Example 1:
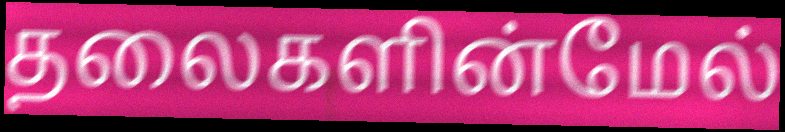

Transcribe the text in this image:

தலைகளின்மேல்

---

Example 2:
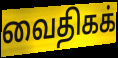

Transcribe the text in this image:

வைதிகக்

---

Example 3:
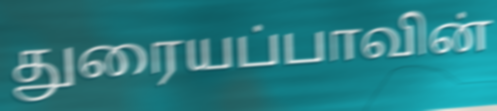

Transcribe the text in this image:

துரையப்பாவின்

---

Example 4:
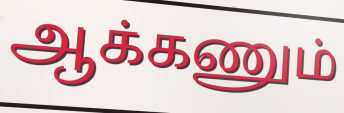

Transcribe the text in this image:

ஆக்கணும்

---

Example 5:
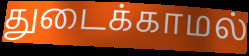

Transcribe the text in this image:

துடைக்காமல்